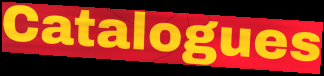
Catalogues